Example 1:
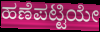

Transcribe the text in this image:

ಹಣೆಪಟ್ಟಿಯೇ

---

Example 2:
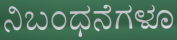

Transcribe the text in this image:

ನಿಬಂಧನೆಗಳೂ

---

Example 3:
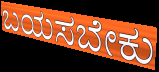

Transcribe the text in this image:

ಬಯಸಬೇಕು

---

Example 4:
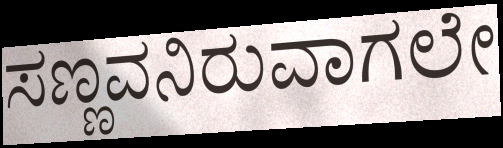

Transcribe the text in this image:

ಸಣ್ಣವನಿರುವಾಗಲೇ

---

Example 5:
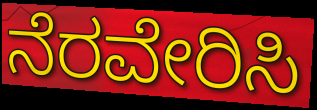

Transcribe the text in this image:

ನೆರವೇರಿಸಿ